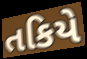
તકિયે